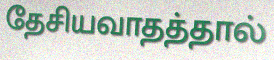
தேசியவாதத்தால்